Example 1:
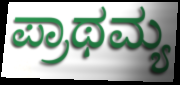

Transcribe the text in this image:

ಪ್ರಾಥಮ್ಯ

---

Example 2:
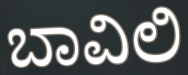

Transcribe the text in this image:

ಬಾವಿಲಿ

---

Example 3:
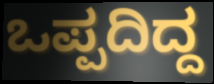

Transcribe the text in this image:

ಒಪ್ಪದಿದ್ದ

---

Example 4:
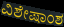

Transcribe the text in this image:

ವಿಶೇಷಾಂಶ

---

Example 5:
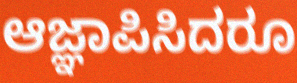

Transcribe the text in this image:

ಆಜ್ಞಾಪಿಸಿದರೂ